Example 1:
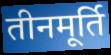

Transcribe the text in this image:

तीनमूर्ति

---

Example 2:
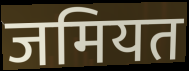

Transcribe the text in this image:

जमियत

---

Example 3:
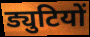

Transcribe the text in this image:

ड्युटियों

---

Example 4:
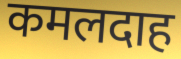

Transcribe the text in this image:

कमलदाह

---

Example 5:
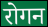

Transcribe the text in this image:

रोगन